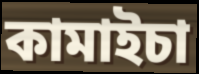
কামাইচা